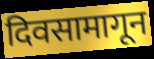
दिवसामागून